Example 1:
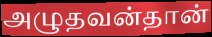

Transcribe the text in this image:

அழுதவன்தான்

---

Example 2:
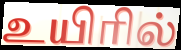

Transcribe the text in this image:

உயிரில்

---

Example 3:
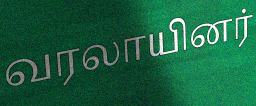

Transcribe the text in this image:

வரலாயினர்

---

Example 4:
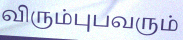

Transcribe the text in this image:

விரும்புபவரும்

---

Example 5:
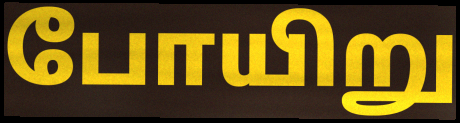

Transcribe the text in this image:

போயிறு